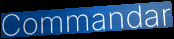
Commandar